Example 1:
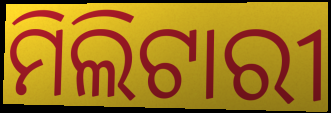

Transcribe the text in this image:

ମିଲିଟାରୀ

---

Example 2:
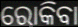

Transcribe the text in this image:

ରୋକିବା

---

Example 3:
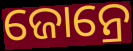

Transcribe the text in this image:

ଜୋନ୍ରେ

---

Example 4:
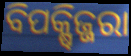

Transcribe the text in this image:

ବିପକ୍ଷ୍ଜ୍ଜିରା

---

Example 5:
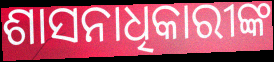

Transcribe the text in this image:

ଶାସନାଧିକାରୀଙ୍କ